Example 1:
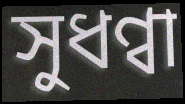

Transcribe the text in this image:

সুধণ্বা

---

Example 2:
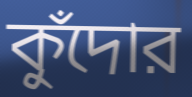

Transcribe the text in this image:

কুঁদোর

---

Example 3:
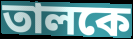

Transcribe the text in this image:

তালকে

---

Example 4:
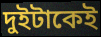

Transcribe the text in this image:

দুইটাকেই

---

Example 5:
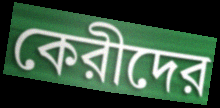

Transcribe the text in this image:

কেরীদের